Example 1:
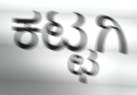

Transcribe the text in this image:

ಕಟ್ಟಗಿ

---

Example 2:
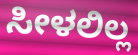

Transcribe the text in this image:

ಸೀಳಲಿಲ್ಲ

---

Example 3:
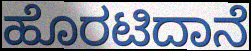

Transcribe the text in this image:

ಹೊರಟಿದಾನೆ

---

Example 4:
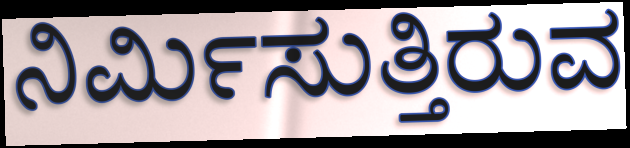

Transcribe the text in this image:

ನಿರ್ಮಿಸುತ್ತಿರುವ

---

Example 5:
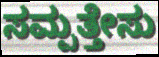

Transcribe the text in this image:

ಸಮ್ಪತ್ತೇಸು